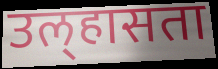
उल्हासता